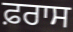
ਫ਼ਰਾਸ